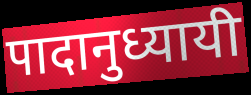
पादानुध्यायी